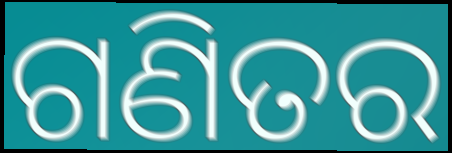
ଗଣିତର